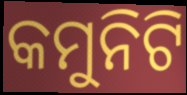
କମୁନିଟି